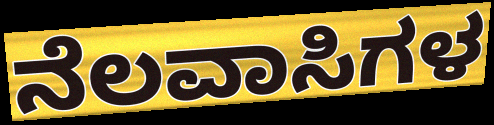
ನೆಲವಾಸಿಗಳ